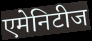
एमेनिटीज